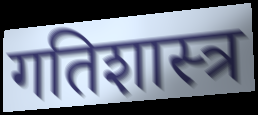
गतिशास्त्र